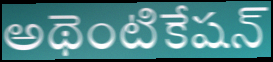
అథెంటికేషన్